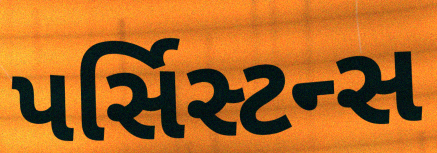
પર્સિસ્ટન્સ